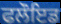
ਫਲੌਇਡ